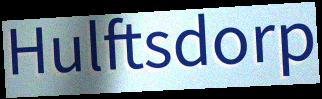
Hulftsdorp